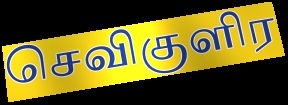
செவிகுளிர